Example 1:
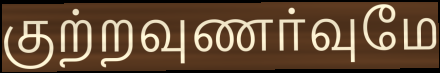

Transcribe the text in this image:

குற்றவுணர்வுமே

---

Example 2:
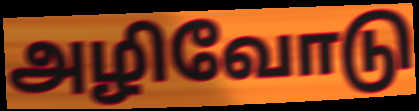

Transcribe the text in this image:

அழிவோடு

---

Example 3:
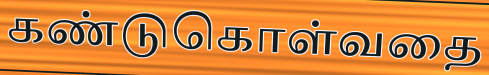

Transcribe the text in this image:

கண்டுகொள்வதை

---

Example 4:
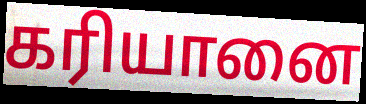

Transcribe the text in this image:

கரியானை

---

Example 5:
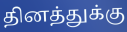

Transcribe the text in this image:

தினத்துக்கு